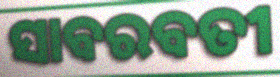
ସାବରବତୀ